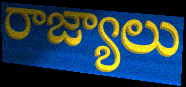
రాజ్యాలు